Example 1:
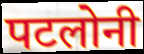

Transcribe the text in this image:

पटलोनी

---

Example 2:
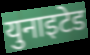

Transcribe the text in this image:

युनाइटेड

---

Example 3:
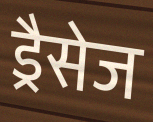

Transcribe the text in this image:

ड्रैसेज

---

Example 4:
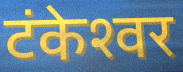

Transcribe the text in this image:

टंकेश्वर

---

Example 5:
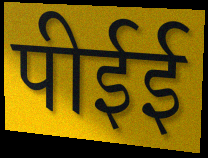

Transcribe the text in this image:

पीईई